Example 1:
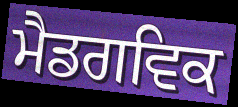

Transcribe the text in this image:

ਮੈਡਗਵਿਕ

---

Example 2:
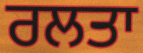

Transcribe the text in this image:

ਰਲਤਾ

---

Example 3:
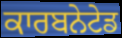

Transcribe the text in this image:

ਕਾਰਬਨੇਟੇਡ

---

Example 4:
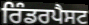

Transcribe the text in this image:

ਰਿੰਡਰਪੈਸਟ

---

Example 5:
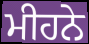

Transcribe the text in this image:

ਮੀਹਨੇ